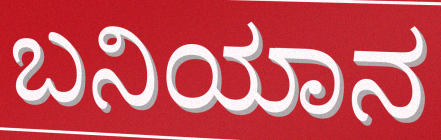
ಬನಿಯಾನ